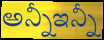
అన్నీఇన్నీ